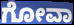
ಗೋವಾ